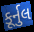
કૂર્નુલ